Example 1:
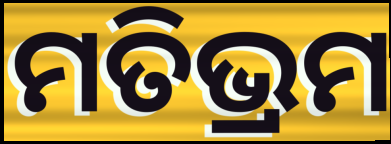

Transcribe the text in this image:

ମତିଭ୍ରମ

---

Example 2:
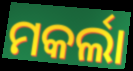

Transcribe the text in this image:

ମକର୍ଲା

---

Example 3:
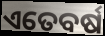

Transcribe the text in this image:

ଏତେବର୍ଷ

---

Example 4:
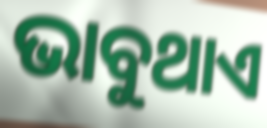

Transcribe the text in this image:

ଭାବୁଥାଏ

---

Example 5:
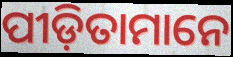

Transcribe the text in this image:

ପୀଡ଼ିତାମାନେ